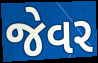
જેવર